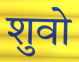
शुवो